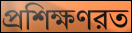
প্রশিক্ষণরত